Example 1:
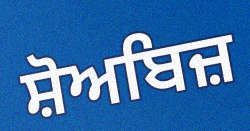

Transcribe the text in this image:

ਸ਼ੋਅਬਿਜ਼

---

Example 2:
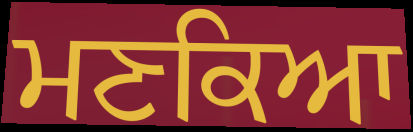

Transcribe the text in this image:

ਮਣਕਿਆ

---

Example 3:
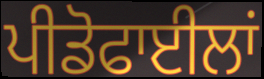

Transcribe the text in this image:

ਪੀਡੋਫਾਈਲਾਂ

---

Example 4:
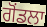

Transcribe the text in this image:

ਗੋਂਡਲਾ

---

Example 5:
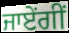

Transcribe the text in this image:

ਜਾਏਂਗੀਂ